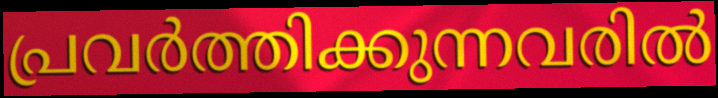
പ്രവർത്തിക്കുന്നവരിൽ